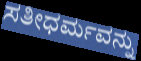
ಸತೀಧರ್ಮವನ್ನು